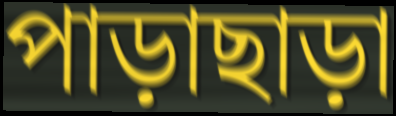
পাড়াছাড়া